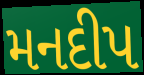
મનદીપ